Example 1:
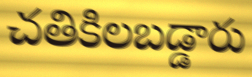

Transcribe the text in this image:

చతికిలబడ్డారు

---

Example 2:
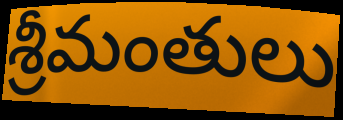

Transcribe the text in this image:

శ్రీమంతులు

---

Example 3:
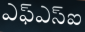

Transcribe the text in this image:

ఎఫ్ఎస్ఐ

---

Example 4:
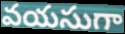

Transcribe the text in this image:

వయసుగా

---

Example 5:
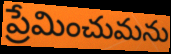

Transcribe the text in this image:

ప్రేమించుమను